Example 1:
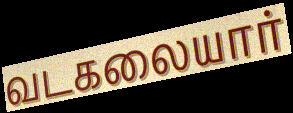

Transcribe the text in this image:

வடகலையார்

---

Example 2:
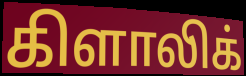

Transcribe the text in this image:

கிளாலிக்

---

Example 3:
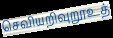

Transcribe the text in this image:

செவியறிவுறூஉத்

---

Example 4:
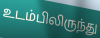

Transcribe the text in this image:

உடம்பிலிருந்து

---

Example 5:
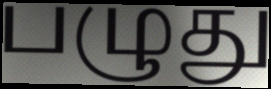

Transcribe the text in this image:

பழுது